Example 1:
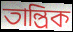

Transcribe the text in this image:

তান্ত্ৰিক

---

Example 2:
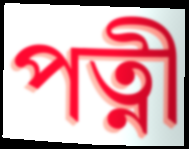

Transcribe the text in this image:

পত্নী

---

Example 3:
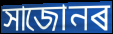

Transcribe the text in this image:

সাজোনৰ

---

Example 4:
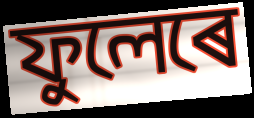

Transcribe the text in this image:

ফুলেৰে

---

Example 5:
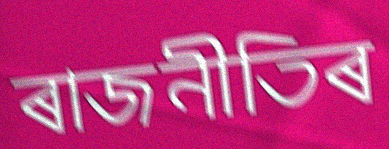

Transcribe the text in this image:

ৰাজনীতিৰ